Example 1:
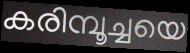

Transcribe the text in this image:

കരിമ്പൂച്ചയെ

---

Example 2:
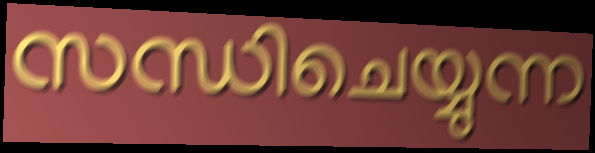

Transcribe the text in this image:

സന്ധിചെയ്യുന്ന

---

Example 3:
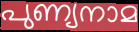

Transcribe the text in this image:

പുണ്യനാമ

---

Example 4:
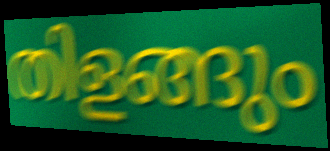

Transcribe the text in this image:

തിളങ്ങും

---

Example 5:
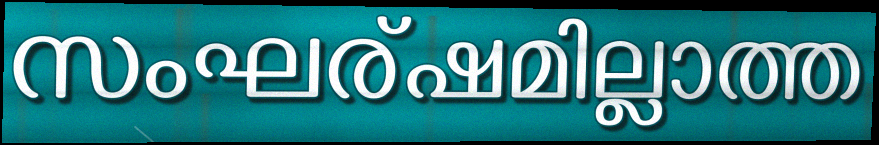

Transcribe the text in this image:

സംഘര്ഷമില്ലാത്ത